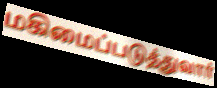
மகிமைப்படுத்துவார்